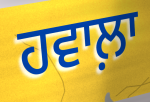
ਹਵਾਲ਼ਾ